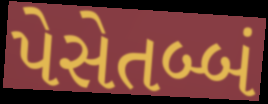
પેસેતબ્બં